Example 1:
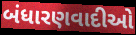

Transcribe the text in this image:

બંધારણવાદીઓ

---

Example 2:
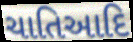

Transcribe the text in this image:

ચાતિઆદિ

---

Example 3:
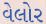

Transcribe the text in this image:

વેલોર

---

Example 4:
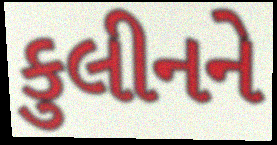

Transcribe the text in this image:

કુલીનને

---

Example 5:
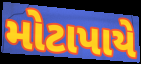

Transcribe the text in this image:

મોટાપાયે